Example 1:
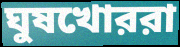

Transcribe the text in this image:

ঘুষখোররা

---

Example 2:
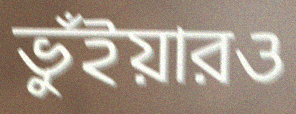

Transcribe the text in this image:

ভুঁইয়ারও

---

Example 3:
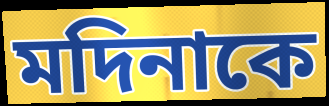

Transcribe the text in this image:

মদিনাকে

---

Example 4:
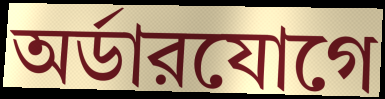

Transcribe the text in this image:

অর্ডারযোগে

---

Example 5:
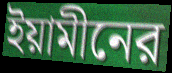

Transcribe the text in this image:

ইয়ামীনের